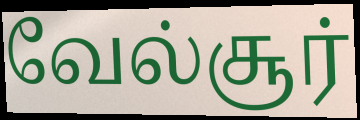
வேல்சூர்